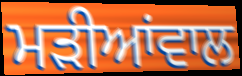
ਮੜੀਆਂਵਾਲ